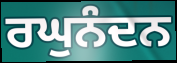
ਰਘੁਨੰਦਨ